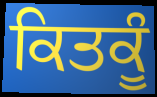
ਕਿਤਕੂੰ